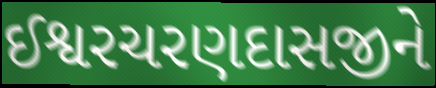
ઈશ્વરચરણદાસજીને